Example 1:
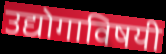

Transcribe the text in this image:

उद्योगाविषयी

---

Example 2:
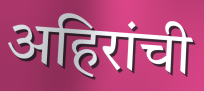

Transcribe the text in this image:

अहिरांची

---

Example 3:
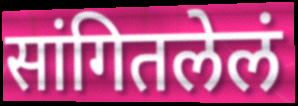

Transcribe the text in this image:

सांगितलेलं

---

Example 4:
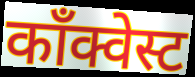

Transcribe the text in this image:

काँक्वेस्ट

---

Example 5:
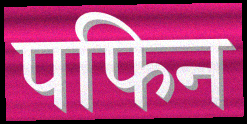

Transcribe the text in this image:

पफिन